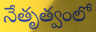
నేతృత్వంలో